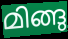
മിങ്ങു